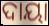
ଦାୟା